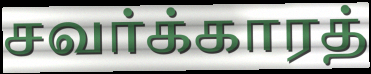
சவர்க்காரத்